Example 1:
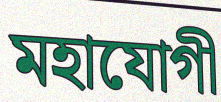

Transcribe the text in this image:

মহাযোগী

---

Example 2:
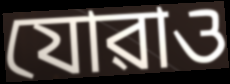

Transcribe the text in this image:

যোৱাও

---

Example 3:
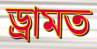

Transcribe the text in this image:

ড্ৰামত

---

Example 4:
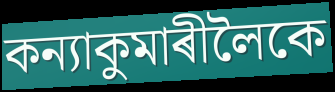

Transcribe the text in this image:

কন্যাকুমাৰীলৈকে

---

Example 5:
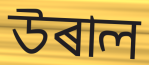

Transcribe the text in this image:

উৰাল